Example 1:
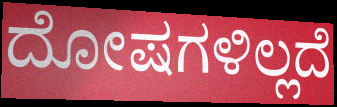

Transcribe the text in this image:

ದೋಷಗಳಿಲ್ಲದೆ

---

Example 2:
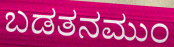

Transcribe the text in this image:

ಬಡತನಮುಂ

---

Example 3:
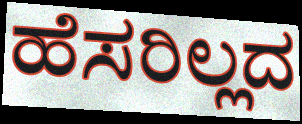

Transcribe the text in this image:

ಹೆಸರಿಲ್ಲದ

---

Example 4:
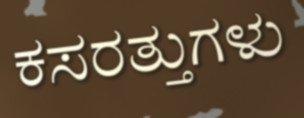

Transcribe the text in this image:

ಕಸರತ್ತುಗಳು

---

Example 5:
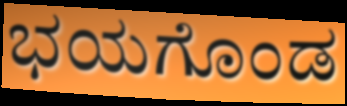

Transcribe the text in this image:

ಭಯಗೊಂಡ